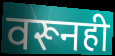
वरूनही